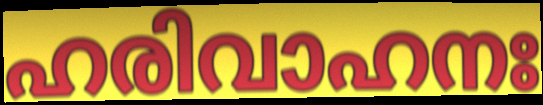
ഹരിവാഹനഃ